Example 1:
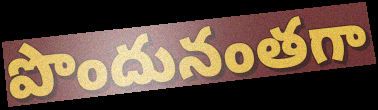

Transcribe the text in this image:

పొందునంతగా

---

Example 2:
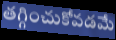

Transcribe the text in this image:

తగ్గించుకోవడమే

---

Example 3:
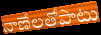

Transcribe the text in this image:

నాణేలతోపాటు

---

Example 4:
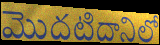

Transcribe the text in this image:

మొదటిదానిలో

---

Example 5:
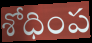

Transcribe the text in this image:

శోధింప